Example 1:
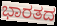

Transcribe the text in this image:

ಭಾರತದ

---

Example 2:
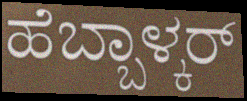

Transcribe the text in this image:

ಹೆಬ್ಬಾಳ್ಕರ್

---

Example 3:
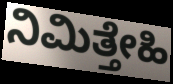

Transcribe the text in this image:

ನಿಮಿತ್ತೇಹಿ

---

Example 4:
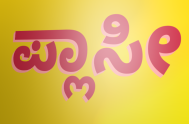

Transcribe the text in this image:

ಪ್ಲಾಸೀ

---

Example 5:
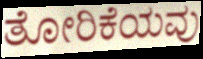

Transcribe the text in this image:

ತೋರಿಕೆಯವು